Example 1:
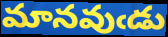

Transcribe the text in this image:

మానవుఁడు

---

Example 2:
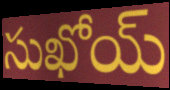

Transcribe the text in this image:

సుఖోయ్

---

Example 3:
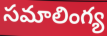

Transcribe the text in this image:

సమాలింగ్య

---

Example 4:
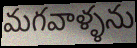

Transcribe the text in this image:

మగవాళ్ళను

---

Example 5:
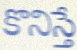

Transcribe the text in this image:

కొనిస్తే